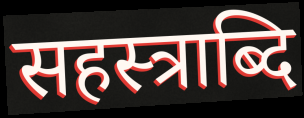
सहस्त्राब्दि